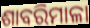
ଶାବରିମାଳା